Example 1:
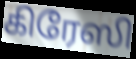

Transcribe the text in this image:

கிரேஸி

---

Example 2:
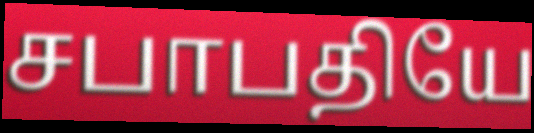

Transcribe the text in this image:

சபாபதியே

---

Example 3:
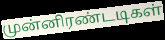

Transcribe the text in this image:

முன்னிரண்டடிகள்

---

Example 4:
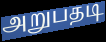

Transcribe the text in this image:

அறுபதடி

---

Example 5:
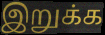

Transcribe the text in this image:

இறுக்க